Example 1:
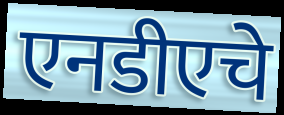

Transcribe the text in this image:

एनडीएचे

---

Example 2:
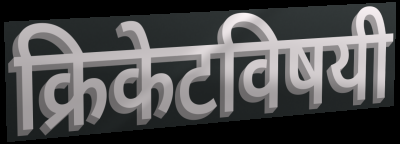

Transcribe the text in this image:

क्रिकेटविषयी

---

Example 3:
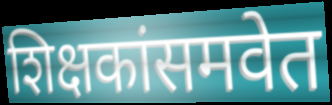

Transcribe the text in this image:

शिक्षकांसमवेत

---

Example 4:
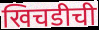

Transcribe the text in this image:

खिचडीची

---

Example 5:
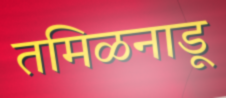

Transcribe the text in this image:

तमिळनाडू